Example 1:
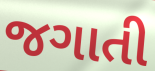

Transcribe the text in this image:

જગાતી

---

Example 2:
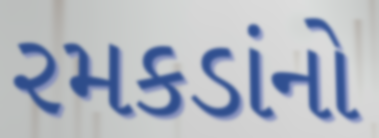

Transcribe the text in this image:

રમકડાંનો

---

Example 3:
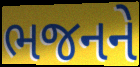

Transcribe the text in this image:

ભજનને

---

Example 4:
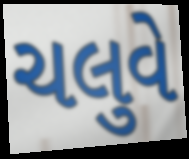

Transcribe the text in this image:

ચલુવે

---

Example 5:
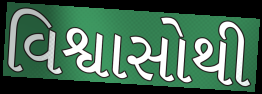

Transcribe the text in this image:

વિશ્વાસોથી